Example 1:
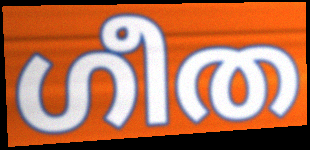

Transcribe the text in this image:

ഗീത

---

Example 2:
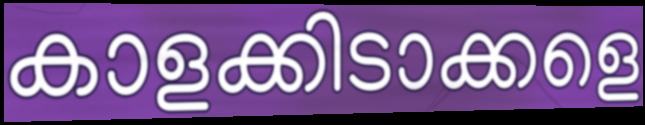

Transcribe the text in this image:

കാളക്കിടാക്കളെ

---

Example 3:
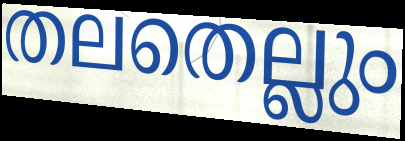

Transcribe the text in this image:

തലതെല്ലും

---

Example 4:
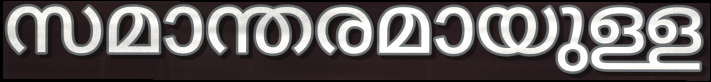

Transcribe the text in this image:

സമാന്തരമായുള്ള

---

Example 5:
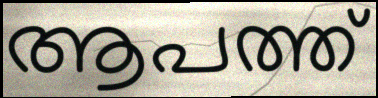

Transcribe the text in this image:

ആപത്ത്